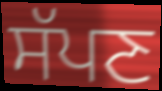
ਸੱਪਣ